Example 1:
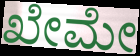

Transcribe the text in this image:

ಖೇಮೇ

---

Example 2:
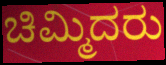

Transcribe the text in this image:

ಚಿಮ್ಮಿದರು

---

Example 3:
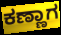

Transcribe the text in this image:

ಕಣ್ಣಾಗ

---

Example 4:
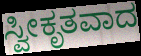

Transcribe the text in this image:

ಸ್ವೀಕೃತವಾದ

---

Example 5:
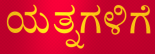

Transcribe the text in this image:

ಯತ್ನಗಳಿಗೆ